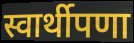
स्वार्थीपणा